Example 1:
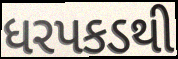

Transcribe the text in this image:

ધરપકડથી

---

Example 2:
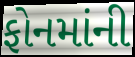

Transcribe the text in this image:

ફોનમાંની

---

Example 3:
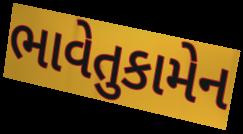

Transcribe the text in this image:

ભાવેતુકામેન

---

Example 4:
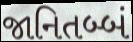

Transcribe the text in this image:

જાનિતબ્બં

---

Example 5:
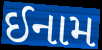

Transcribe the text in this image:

ઈનામ